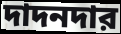
দাদনদার